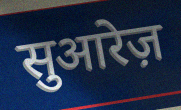
सुआरेज़